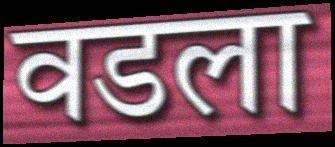
वडला